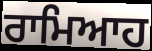
ਰਾਮਿਆਹ